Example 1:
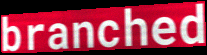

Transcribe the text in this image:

branched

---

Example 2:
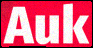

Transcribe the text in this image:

Auk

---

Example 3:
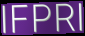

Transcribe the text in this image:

IFPRI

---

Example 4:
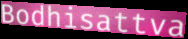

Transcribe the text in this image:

Bodhisattva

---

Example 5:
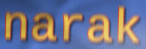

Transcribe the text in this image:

narak